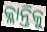
କ୍ଳାନ୍ତିକୁ